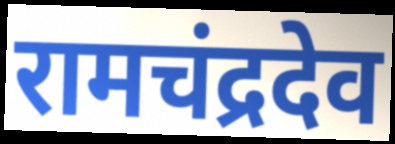
रामचंद्रदेव